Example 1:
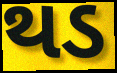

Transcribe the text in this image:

થડ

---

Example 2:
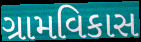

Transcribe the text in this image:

ગ્રામવિકાસ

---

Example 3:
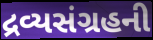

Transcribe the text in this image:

દ્રવ્યસંગ્રહની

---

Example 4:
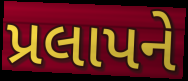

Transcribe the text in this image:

પ્રલાપને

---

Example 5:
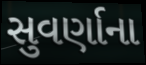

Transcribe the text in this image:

સુવર્ણાના